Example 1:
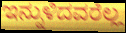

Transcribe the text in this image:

ಇನ್ನುಳಿದವರೆಲ್ಲ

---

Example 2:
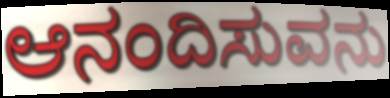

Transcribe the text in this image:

ಆನಂದಿಸುವನು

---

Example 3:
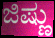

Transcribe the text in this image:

ಜಿಷ್ಣು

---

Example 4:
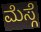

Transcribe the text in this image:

ಮೆಸ್ಗೆ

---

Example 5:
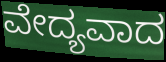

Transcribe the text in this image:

ವೇದ್ಯವಾದ